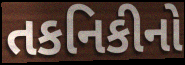
તકનિકીનો